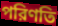
পরিণতি